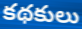
కథకులు